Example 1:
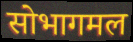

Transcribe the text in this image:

सोभागमल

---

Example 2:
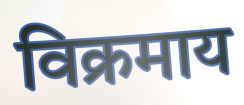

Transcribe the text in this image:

विक्रमाय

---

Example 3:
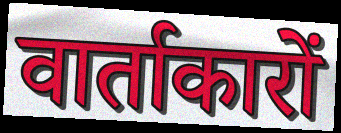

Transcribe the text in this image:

वार्ताकारों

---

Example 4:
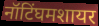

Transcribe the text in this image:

नॉटिंघमशायर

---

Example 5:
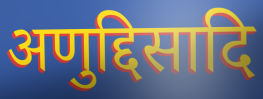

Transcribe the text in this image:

अणुद्दिसादि